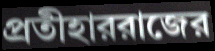
প্রতীহাররাজের